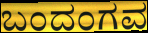
ಬಂದಂಗವ